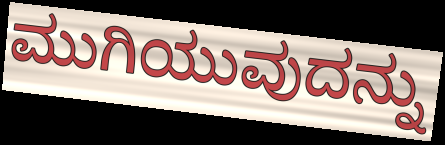
ಮುಗಿಯುವುದನ್ನು